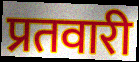
प्रतवारी